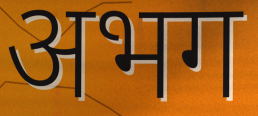
अभग